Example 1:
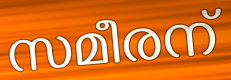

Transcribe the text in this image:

സമീരന്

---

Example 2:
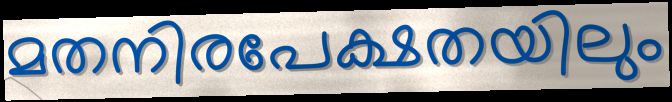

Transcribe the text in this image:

മതനിരപേക്ഷതയിലും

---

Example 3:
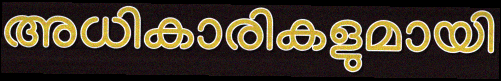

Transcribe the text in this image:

അധികാരികളുമായി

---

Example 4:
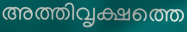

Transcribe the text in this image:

അത്തിവൃക്ഷത്തെ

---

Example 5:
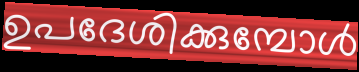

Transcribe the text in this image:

ഉപദേശിക്കുമ്പോൾ